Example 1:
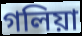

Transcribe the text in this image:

গলিয়া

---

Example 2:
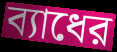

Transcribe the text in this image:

ব্যাধের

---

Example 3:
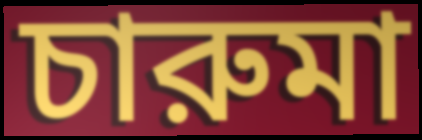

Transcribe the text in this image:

চারুমা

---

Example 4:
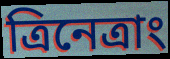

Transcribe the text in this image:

ত্রিনেত্রাং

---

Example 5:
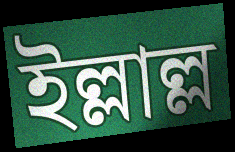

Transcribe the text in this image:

ইল্লাল্ল